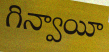
గిన్వాయీ